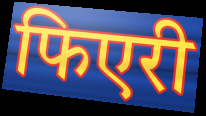
फिएरी